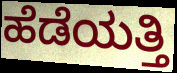
ಹೆಡೆಯತ್ತಿ